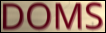
DOMS